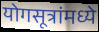
योगसूत्रांमध्ये